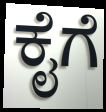
ಕೈಗೆ